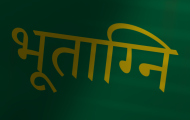
भूताग्नि